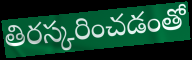
తిరస్కరించడంతో